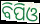
ବିପିଓ